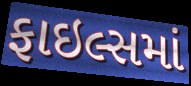
ફાઇલ્સમાં